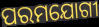
ପରମଯୋଗୀ